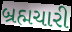
બ્રહ્મચારી